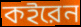
কইরেন